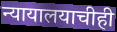
न्यायालयाचीही